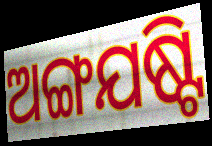
ଅଙ୍ଗଯଷ୍ଟି